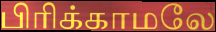
பிரிக்காமலே